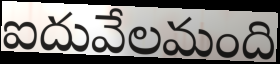
ఐదువేలమంది